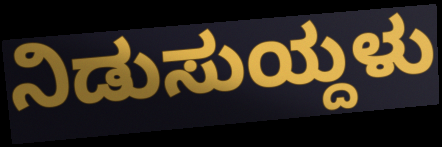
ನಿಡುಸುಯ್ದಳು